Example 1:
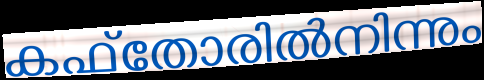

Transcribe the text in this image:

കഫ്തോരിൽനിന്നും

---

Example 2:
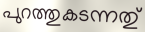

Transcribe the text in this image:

പുറത്തുകടന്നതു്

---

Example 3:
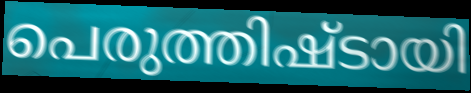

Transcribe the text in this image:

പെരുത്തിഷ്ടായി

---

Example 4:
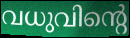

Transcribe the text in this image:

വധുവിന്റെ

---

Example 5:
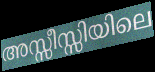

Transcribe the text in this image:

അസ്സീസ്സിയിലെ